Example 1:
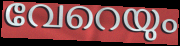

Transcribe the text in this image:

വേറെയും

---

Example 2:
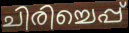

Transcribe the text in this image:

ചിരിച്ചെപ്പ്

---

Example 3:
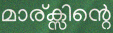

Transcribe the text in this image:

മാര്ക്സിന്റെ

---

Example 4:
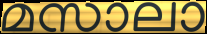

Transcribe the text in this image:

മസാലാ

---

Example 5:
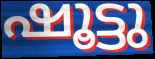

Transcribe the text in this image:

ഷൂട്ടു